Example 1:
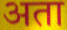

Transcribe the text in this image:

अता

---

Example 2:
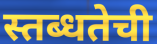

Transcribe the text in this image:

स्तब्धतेची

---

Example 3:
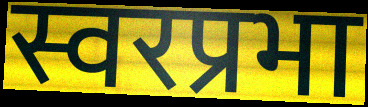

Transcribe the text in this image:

स्वरप्रभा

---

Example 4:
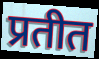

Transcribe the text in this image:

प्रतीत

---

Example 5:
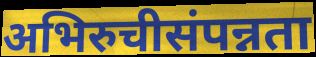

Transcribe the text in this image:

अभिरुचीसंपन्नता